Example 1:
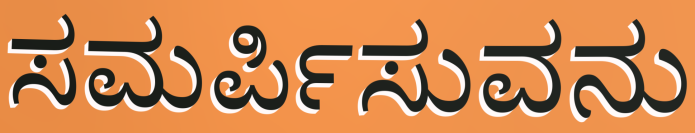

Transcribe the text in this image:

ಸಮರ್ಪಿಸುವನು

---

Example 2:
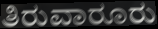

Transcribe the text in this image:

ತಿರುವಾರೂರು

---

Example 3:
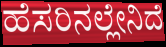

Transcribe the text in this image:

ಹೆಸರಿನಲ್ಲೇನಿದೆ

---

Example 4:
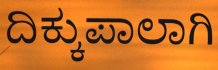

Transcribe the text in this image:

ದಿಕ್ಕುಪಾಲಾಗಿ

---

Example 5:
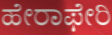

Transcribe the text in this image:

ಹೇರಾಫೇರಿ